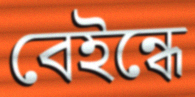
বেইন্ধে